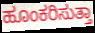
ಹೂಂಕರಿಸುತ್ತಾ